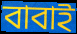
বাবাই